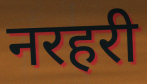
नरहरी